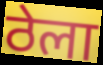
ठेला